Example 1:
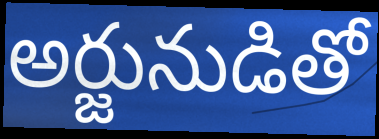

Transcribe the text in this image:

అర్జునుడితో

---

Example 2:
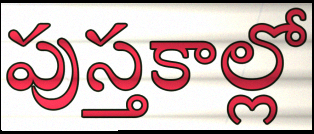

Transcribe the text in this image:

పుస్తకాల్లో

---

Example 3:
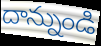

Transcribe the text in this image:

దాన్నుండి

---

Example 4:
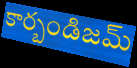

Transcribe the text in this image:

కార్బండిజమ్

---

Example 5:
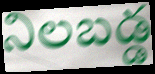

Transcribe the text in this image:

నిలబడ్డ